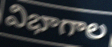
విభాగాల